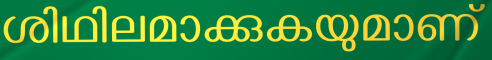
ശിഥിലമാക്കുകയുമാണ്